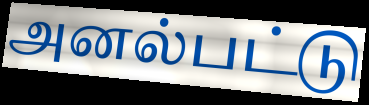
அனல்பட்டு